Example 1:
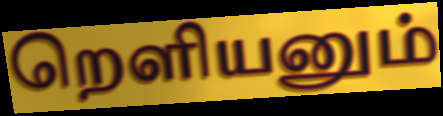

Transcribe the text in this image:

றெளியனும்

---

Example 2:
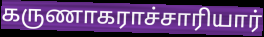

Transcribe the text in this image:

கருணாகராச்சாரியார்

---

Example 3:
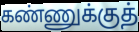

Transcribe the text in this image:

கண்ணுக்குத்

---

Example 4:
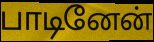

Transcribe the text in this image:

பாடினேன்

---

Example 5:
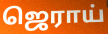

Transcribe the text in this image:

ஜெராய்